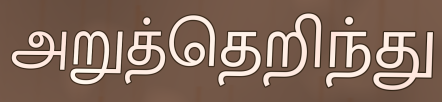
அறுத்தெறிந்து